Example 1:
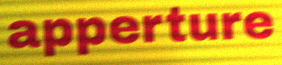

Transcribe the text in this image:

apperture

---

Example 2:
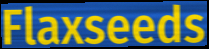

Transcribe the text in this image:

Flaxseeds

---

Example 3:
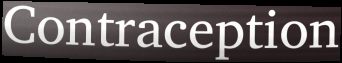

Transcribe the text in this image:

Contraception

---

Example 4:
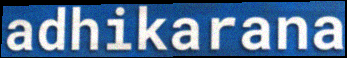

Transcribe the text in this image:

adhikarana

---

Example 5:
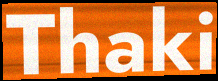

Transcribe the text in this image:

Thaki